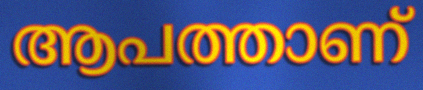
ആപത്താണ്